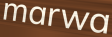
marwa